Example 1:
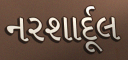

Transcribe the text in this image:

નરશાર્દૂલ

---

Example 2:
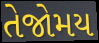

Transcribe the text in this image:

તેજોમય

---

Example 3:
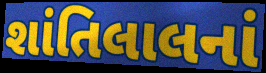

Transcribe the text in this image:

શાંતિલાલનાં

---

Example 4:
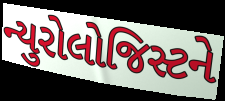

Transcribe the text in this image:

ન્યુરોલોજિસ્ટને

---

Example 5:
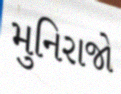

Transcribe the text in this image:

મુનિરાજો